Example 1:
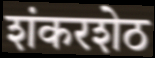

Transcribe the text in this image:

शंकरशेठ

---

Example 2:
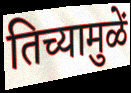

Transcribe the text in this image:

तिच्यामुळें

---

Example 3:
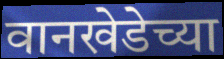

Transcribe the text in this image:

वानखेडेच्या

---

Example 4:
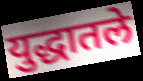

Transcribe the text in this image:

युद्धातले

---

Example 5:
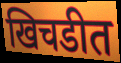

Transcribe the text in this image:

खिचडीत